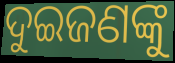
ଦୁଇଜଣଙ୍କୁ